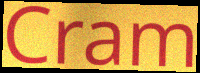
Cram